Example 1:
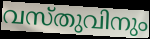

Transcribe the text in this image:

വസ്തുവിനും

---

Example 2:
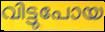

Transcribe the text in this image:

വിട്ടുപോയ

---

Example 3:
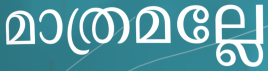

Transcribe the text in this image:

മാത്രമല്ലേ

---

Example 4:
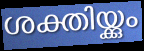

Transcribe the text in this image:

ശക്തിയ്ക്കും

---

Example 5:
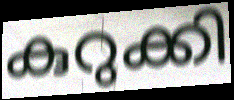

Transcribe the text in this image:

കുറുക്കി